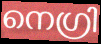
നെഗ്രി